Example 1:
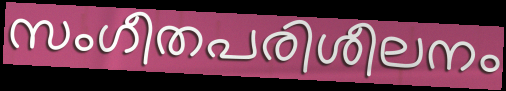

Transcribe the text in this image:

സംഗീതപരിശീലനം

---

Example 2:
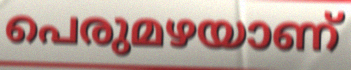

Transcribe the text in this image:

പെരുമഴയാണ്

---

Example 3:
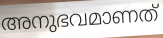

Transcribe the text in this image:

അനുഭവമാണത്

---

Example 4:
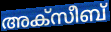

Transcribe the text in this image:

അക്സീബ്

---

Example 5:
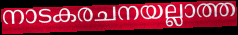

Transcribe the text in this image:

നാടകരചനയല്ലാത്ത